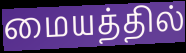
மையத்தில்